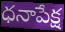
ధనాపేక్ష